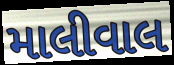
માલીવાલ